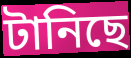
টানিছে